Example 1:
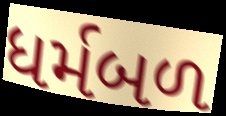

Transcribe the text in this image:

ધર્મબળ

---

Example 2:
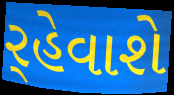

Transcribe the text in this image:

ર્‌હેવાશે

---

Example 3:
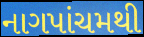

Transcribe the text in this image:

નાગપાંચમથી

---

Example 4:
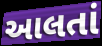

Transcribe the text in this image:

આલતાં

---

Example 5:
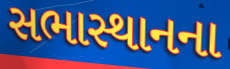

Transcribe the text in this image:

સભાસ્થાનના